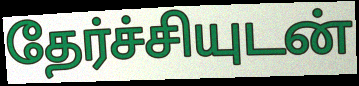
தேர்ச்சியுடன்